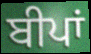
ਬੀਪਾਂ